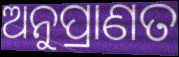
ଅନୁପ୍ରାଣତ